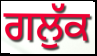
ਗਲੁੱਕ